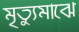
মৃত্যুমাঝে